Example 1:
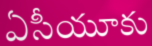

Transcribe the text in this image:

ఏసీయూకు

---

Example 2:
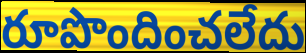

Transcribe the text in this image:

రూపొందించలేదు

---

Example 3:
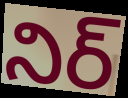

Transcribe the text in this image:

నిర్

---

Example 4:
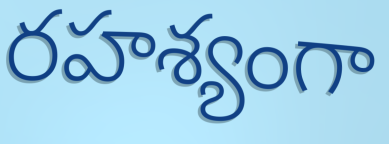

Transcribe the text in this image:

రహశ్యంగా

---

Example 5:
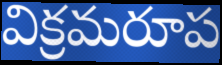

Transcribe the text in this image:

విక్రమరూప